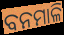
ବନମାଳି